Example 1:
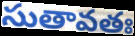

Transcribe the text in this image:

సుతావతః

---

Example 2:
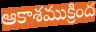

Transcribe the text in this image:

ఆకాశముక్రింద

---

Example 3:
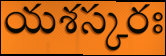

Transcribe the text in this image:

యశస్కరః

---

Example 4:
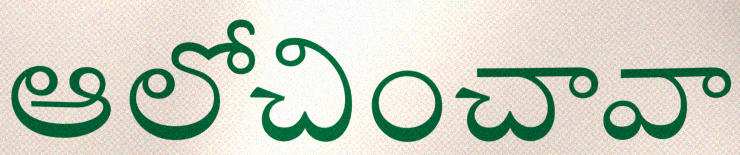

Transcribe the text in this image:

ఆలోచించావా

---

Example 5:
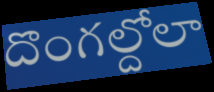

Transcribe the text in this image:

దొంగల్దోలా